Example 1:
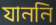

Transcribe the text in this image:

যাননি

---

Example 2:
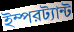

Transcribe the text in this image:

ইম্পরট্যান্ট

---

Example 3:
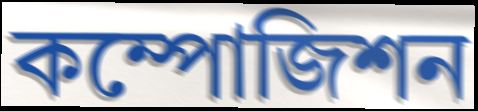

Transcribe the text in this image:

কম্পোজিশন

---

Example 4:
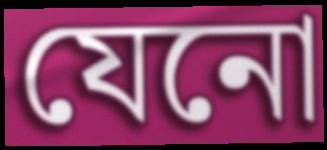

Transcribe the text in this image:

যেনো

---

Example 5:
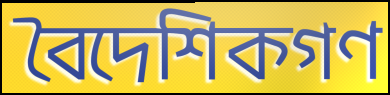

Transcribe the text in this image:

বৈদেশিকগণ